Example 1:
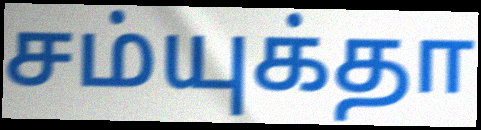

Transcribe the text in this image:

சம்யுக்தா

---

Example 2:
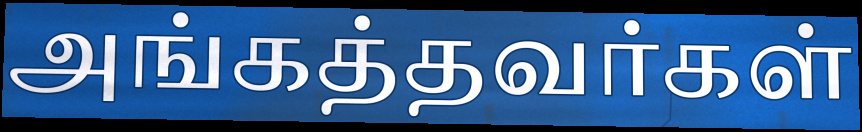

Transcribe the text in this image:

அங்கத்தவர்கள்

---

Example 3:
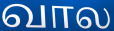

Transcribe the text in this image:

வால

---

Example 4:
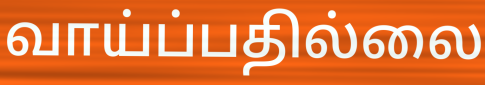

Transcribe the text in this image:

வாய்ப்பதில்லை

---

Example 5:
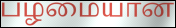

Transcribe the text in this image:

பழமையான